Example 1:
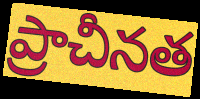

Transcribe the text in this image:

ప్రాచీనత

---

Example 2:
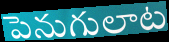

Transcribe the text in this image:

పెనుగులాట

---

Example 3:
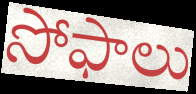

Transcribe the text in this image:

సోఫాలు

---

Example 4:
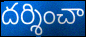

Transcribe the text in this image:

దర్శించా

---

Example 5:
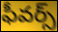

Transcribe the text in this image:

ఫీవర్స్